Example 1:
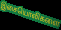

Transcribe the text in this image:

இசையொலிகளை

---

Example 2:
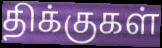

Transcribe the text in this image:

திக்குகள்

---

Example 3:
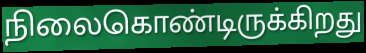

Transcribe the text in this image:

நிலைகொண்டிருக்கிறது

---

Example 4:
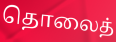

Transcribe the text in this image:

தொலைத்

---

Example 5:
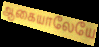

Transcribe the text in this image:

ஆகையாலேயே